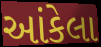
આંકેલા